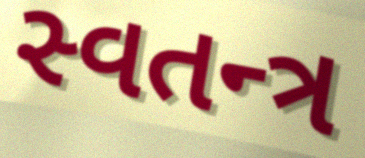
સ્વતન્ત્ર